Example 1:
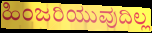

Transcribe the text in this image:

ಹಿಂಜರಿಯುವುದಿಲ್ಲ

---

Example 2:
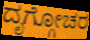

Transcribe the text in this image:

ದೃಗ್ಗೋಚರ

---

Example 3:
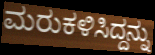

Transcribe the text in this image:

ಮರುಕಳಿಸಿದ್ದನ್ನು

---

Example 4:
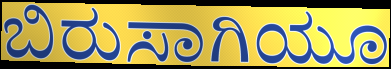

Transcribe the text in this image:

ಬಿರುಸಾಗಿಯೂ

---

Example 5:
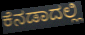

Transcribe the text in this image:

ಕೆನಡಾದಲ್ಲಿ